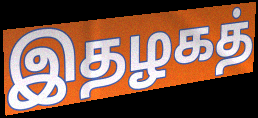
இதழகத்